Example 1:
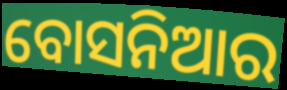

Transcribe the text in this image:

ବୋସନିଆର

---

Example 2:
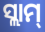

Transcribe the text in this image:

ସ୍ଲାମ୍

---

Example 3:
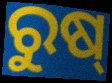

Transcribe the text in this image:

ରୁଷ୍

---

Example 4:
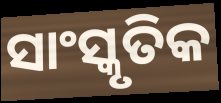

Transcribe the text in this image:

ସାଂସ୍କୃତିକ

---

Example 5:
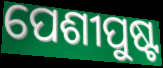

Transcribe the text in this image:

ପେଶୀପୁଷ୍ଟ